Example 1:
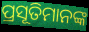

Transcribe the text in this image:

ପ୍ରସୂତିମାନଙ୍କ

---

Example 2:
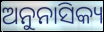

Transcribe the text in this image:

ଅନୁନାସିକ୍ୟ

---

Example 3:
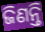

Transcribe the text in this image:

ଜିଣନ୍ତି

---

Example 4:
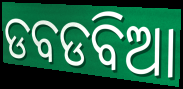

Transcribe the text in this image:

ଡବଡବିଆ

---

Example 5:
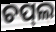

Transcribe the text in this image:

ଚପ୍‌ଲ